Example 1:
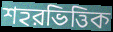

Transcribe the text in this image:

শহরভিত্তিক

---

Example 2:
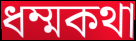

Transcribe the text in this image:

ধম্মকথা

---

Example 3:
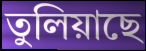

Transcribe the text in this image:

তুলিয়াছে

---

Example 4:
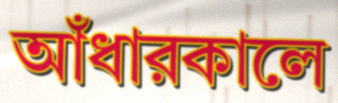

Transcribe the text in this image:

আঁধারকালে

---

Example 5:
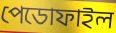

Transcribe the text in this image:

পেডোফাইল